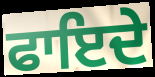
ਫਾਇਦੇ